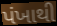
પંખાથી